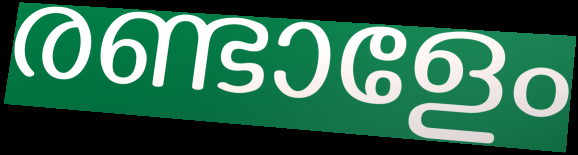
രണ്ടാളേം